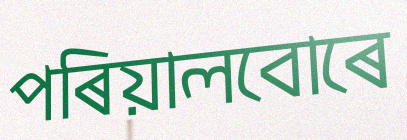
পৰিয়ালবোৰে